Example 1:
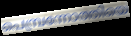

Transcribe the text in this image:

പെമ്പ്രന്നോത്തിയെ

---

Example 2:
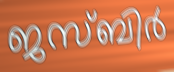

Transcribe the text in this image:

ജസ്ബിർ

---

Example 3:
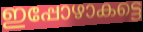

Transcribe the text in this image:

ഇപ്പോഴാകട്ടെ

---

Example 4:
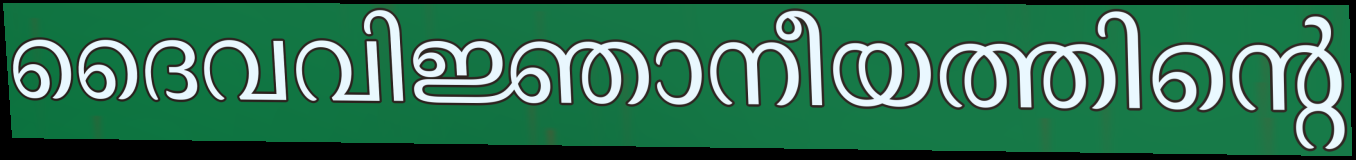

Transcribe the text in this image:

ദൈവവിജ്ഞാനീയത്തിന്റെ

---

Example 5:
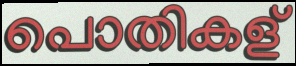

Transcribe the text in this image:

പൊതികള്